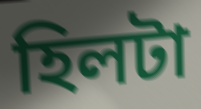
হিলটা